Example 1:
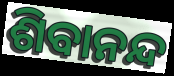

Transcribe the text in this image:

ଶିବାନନ୍ଦ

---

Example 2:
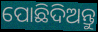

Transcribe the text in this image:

ପୋଛିଦିଅନ୍ତୁ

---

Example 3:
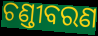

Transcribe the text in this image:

ଚଣ୍ଡୀବରଣ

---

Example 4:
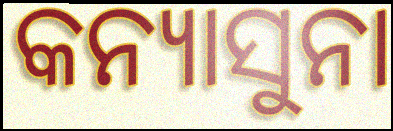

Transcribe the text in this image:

କନ୍ୟାସୁନା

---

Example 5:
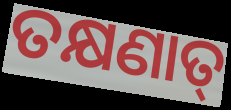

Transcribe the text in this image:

ତକ୍ଷଣାତ୍